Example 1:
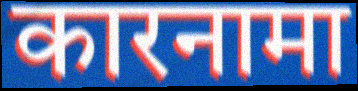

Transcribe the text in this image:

कारनामा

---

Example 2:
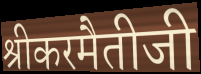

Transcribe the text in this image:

श्रीकरमैतीजी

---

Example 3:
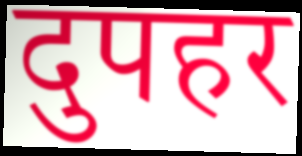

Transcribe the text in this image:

दुपहर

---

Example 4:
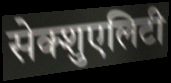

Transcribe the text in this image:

सेक्शुएलिटी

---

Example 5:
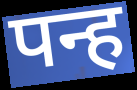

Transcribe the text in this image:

पन्ह